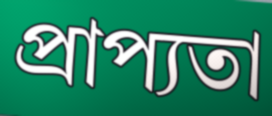
প্রাপ্যতা